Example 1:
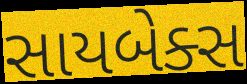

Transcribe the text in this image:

સાયબેક્સ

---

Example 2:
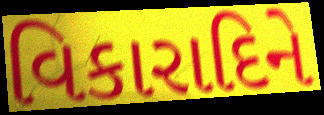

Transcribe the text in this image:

વિકારાદિને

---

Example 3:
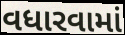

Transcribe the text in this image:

વધારવામાં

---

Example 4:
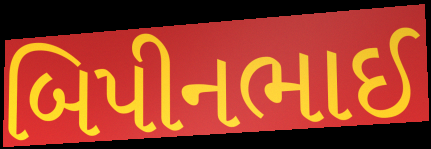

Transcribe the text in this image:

બિપીનભાઈ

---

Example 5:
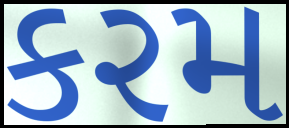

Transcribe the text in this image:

કરમ